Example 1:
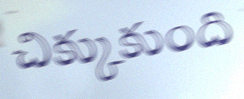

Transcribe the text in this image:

చిక్కుకుంది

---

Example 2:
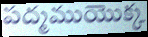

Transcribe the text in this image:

పద్మముయొక్క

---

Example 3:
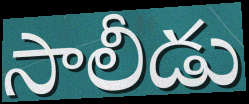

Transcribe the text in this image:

సాలీడు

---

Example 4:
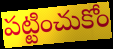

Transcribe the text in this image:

పట్టించుకోం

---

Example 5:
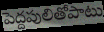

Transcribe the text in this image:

పెద్దపులితోపాటు